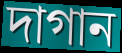
দাগান